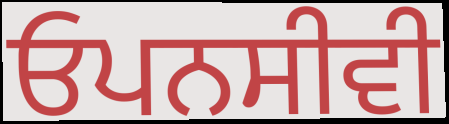
ਓਪਨਸੀਵੀ